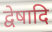
द्वेषादि